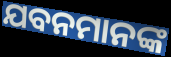
ଯବନମାନଙ୍କ